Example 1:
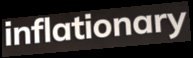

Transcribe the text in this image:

inflationary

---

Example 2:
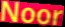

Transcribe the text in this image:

Noor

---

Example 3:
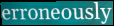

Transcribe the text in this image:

erroneously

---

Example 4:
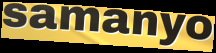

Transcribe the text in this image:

samanyo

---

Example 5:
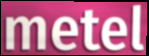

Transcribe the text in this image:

metel